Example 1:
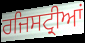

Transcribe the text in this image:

ਰਜਿਸਟ੍ਰੀਆਂ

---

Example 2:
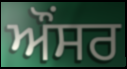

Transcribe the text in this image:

ਔਂਸਰ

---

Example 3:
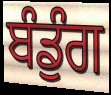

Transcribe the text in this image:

ਬੰਡੁੰਗ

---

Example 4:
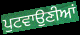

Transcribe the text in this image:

ਪੁਟਵਾਉਣੀਆਂ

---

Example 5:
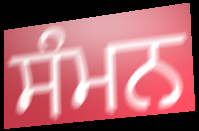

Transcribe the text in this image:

ਸੰਮਨ